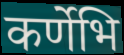
कर्णेभि